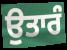
ਉਤਾਰੰ